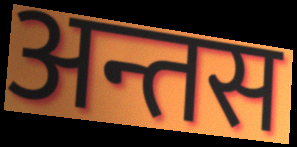
अन्तस